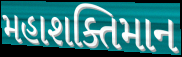
મહાશક્તિમાન